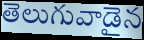
తెలుగువాడైన